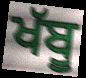
ਖੱਬੂ